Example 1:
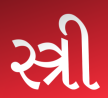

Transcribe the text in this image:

સ્ત્રી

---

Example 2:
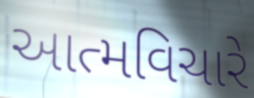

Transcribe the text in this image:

આત્મવિચારે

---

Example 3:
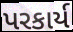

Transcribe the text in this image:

પરકાર્ય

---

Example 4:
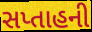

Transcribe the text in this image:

સપ્તાહની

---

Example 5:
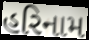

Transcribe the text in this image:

હરિનામ